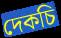
দেকচি